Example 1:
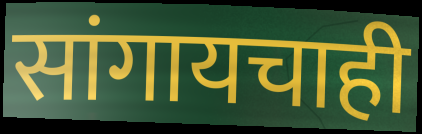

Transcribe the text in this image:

सांगायचाही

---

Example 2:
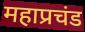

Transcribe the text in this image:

महाप्रचंड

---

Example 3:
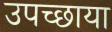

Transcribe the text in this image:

उपच्छाया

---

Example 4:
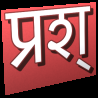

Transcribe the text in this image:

प्रश्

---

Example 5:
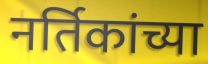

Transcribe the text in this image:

नर्तिकांच्या